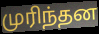
முரிந்தன